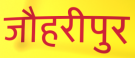
जौहरीपुर